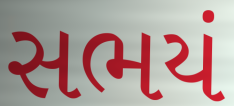
સભયં